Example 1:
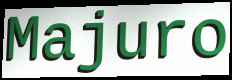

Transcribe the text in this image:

Majuro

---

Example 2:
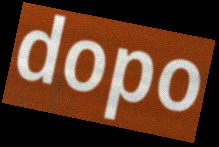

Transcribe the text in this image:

dopo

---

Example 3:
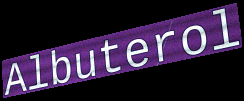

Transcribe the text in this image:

Albuterol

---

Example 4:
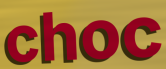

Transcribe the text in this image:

choc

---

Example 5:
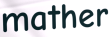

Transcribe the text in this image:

mather